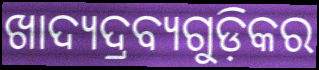
ଖାଦ୍ୟଦ୍ରବ୍ୟଗୁଡ଼ିକର